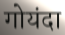
गोयंदा